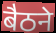
बैठने